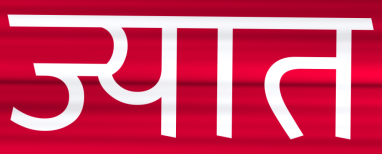
ज्यात